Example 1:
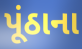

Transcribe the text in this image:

પૂંઠાના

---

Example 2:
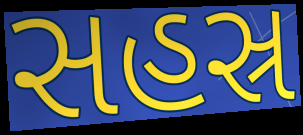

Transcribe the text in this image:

સહસ્ર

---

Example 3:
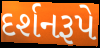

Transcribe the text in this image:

દર્શનરૂપે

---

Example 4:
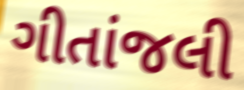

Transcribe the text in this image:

ગીતાંજલી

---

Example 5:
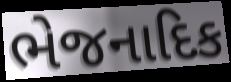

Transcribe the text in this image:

ભેજનાદિક